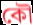
কৌ